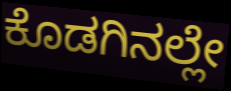
ಕೊಡಗಿನಲ್ಲೇ